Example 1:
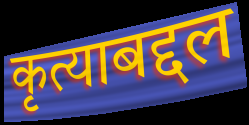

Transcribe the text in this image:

कृत्याबद्दल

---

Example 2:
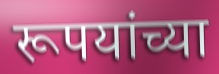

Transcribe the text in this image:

रूपयांच्या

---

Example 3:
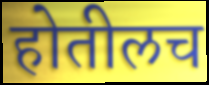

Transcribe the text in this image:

होतीलच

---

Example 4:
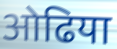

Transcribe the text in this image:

ओढिया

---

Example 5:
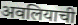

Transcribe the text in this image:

अवलियाची